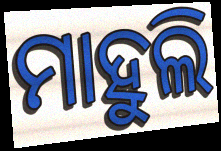
ମାହୁଲି